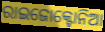
ରାଇଜୋକ୍ଟୋନିଆ